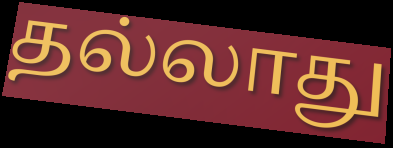
தல்லாது